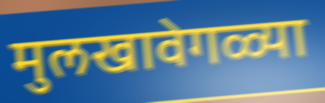
मुलखावेगळ्या